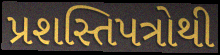
પ્રશસ્તિપત્રોથી